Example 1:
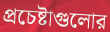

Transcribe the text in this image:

প্রচেষ্টাগুলোর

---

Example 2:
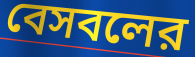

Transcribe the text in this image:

বেসবলের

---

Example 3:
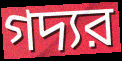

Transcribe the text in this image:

গদ্যর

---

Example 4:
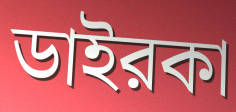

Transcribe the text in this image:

ডাইরকা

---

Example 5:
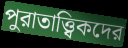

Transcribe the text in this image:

পুরাতাত্ত্বিকদের